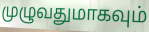
முழுவதுமாகவும்